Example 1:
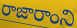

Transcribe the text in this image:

రాజారాంని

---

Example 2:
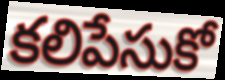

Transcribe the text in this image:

కలిపేసుకో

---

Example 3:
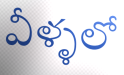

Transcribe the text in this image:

వీళ్ళలో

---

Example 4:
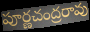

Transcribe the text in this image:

పూర్ణచంద్రరావు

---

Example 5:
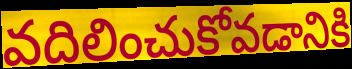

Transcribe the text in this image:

వదిలించుకోవడానికి